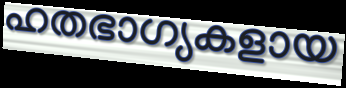
ഹതഭാഗ്യകളായ